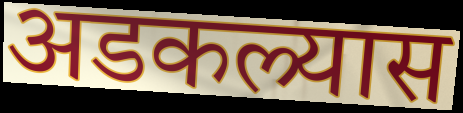
अडकल्यास